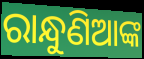
ରାନ୍ଧୁଣିଆଙ୍କ